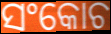
ସଂକୋଚ